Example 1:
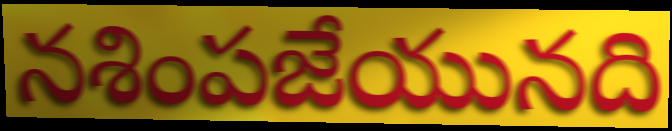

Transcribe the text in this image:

నశింపజేయునది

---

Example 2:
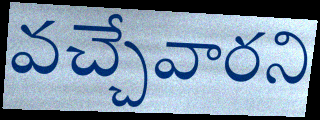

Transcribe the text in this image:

వచ్చేవారని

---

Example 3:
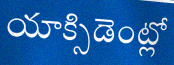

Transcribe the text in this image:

యాక్సిడెంట్లో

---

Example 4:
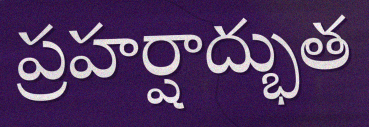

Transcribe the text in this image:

ప్రహర్షాద్భుత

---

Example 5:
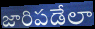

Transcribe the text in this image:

జారిపడేలా